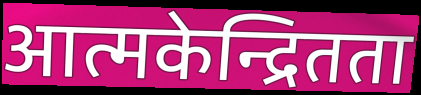
आत्मकेन्द्रितता